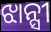
ଝାନ୍ସୀ